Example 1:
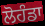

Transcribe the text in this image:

ਲੋਹੰਡਾ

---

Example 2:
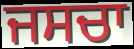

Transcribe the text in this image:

ਜਸਚਾ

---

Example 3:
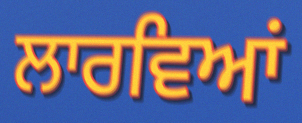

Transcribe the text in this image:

ਲਾਰਵਿਆਂ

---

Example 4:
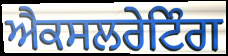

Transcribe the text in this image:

ਐਕਸਲਰੇਟਿੰਗ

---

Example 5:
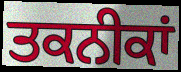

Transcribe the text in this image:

ਤਕਨੀਕਾਂ